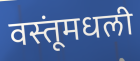
वस्तूंमधली